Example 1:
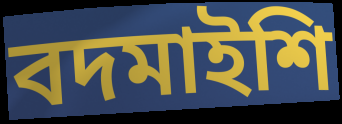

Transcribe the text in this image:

বদমাইশি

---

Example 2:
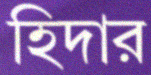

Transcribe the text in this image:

হিদার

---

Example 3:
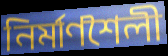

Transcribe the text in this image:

নির্মাণশৈলী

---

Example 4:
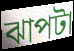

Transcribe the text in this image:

ঝাপটা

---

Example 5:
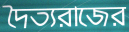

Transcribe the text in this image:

দৈত্যরাজের